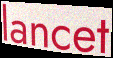
lancet